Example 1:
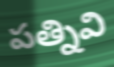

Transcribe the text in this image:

పత్నివి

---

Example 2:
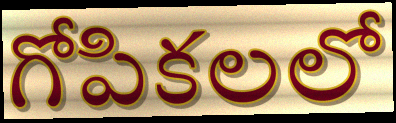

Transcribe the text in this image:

గోపికలలో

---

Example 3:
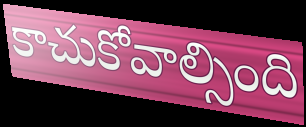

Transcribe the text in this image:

కాచుకోవాల్సింది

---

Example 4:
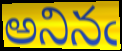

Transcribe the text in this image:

అనినఁ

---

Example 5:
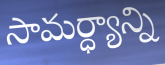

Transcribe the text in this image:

సామర్ధ్యాన్ని